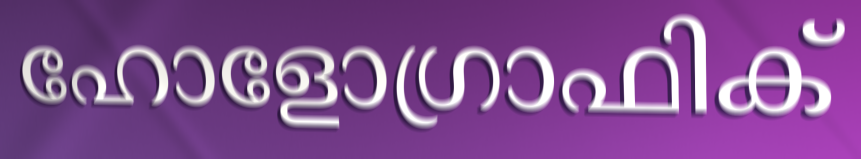
ഹോളോഗ്രാഫിക്